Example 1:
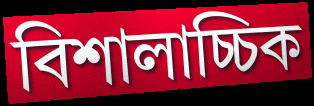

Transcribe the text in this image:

বিশালাচ্চিক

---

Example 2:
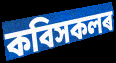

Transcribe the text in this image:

কবিসকলৰ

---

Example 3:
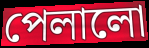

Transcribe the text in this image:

পেলালো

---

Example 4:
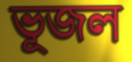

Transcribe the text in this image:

ভূজল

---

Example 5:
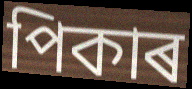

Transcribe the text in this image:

পিকাৰ